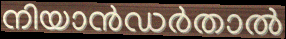
നിയാൻഡർതാൽ